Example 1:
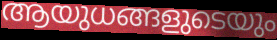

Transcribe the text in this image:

ആയുധങ്ങളുടെയും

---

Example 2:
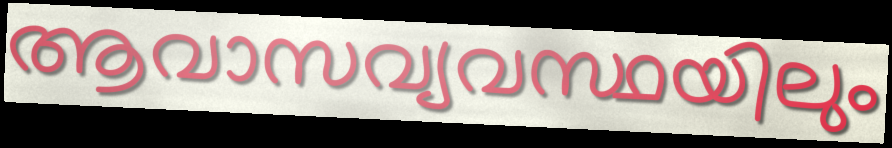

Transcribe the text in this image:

ആവാസവ്യവസ്ഥയിലും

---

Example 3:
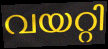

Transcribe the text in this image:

വയറ്റി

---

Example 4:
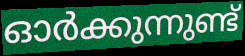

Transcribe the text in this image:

ഓർക്കുന്നുണ്ട്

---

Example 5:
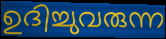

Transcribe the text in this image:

ഉദിച്ചുവരുന്ന